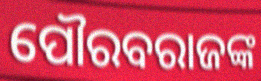
ପୌରବରାଜଙ୍କ